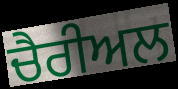
ਚੈਰੀਅਲ